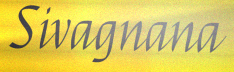
Sivagnana